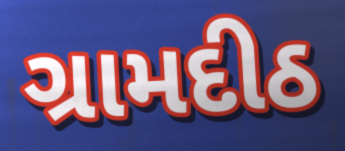
ગ્રામદીઠ